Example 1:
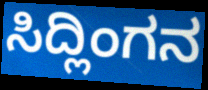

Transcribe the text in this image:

ಸಿದ್ಲಿಂಗನ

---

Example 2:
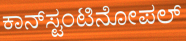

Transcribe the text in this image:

ಕಾನ್‍ಸ್ಟಂಟಿನೋಪಲ್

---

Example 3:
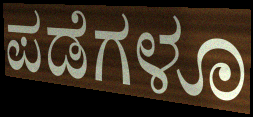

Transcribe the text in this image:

ಪಡೆಗಳೂ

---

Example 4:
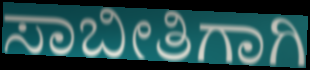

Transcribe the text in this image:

ಸಾಬೀತಿಗಾಗಿ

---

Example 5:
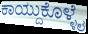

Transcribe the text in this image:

ಕಾಯ್ದುಕೊಳ್ಳೈ